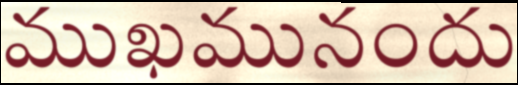
ముఖమునందు